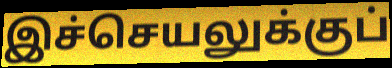
இச்செயலுக்குப்